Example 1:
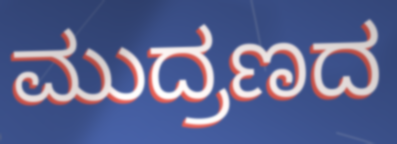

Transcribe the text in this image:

ಮುದ್ರಣದ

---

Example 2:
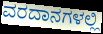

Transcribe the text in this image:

ವರದಾನಗಳಲ್ಲಿ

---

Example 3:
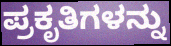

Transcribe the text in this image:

ಪ್ರಕೃತಿಗಳನ್ನು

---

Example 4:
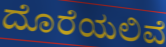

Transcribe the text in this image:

ದೊರೆಯಲಿವೆ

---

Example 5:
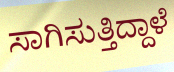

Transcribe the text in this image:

ಸಾಗಿಸುತ್ತಿದ್ದಾಳೆ